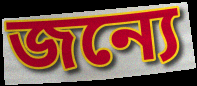
জন্যে